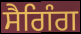
ਸੈਗਿੰਗ